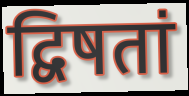
द्विषतां